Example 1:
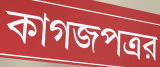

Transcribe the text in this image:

কাগজপত্রর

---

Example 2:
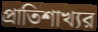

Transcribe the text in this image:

প্রাতিশাখ্যর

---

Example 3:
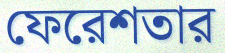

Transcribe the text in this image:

ফেরেশতার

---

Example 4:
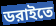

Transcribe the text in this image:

ডরাইতে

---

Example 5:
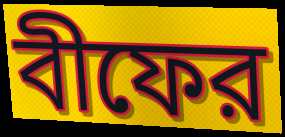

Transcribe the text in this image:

বীফের